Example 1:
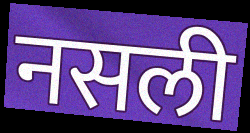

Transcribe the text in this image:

नसली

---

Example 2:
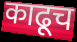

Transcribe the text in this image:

काढूच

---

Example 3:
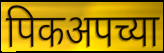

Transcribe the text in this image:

पिकअपच्या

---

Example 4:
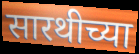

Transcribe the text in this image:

सारथीच्या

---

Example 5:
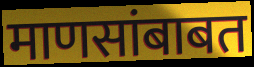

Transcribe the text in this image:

माणसांबाबत